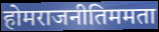
होमराजनीतिममता